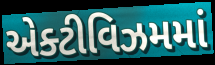
એક્ટીવિઝમમાં